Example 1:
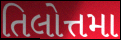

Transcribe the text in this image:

તિલોત્તમા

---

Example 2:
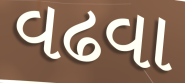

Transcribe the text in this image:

વઢવા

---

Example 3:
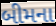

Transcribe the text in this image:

બીમના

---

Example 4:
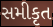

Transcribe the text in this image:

સમીકૃત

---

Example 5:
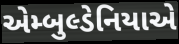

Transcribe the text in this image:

એમ્બુલ્ડેનિયાએ